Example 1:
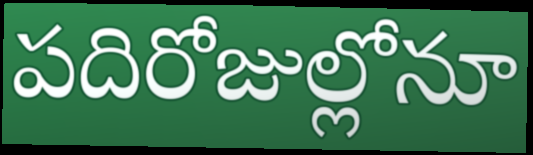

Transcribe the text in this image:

పదిరోజుల్లోనూ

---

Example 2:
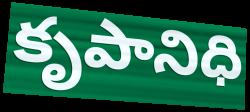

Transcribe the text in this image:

కృపానిధి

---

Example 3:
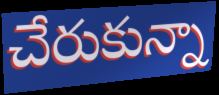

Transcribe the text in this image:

చేరుకున్నా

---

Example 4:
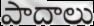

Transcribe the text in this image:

పాదాలు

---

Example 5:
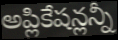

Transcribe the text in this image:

అప్లికేషన్లన్నీ